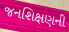
જનશિક્ષણની